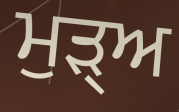
ਮੁਡ਼੍ਅ